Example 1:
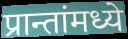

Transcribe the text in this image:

प्रान्तांमध्ये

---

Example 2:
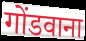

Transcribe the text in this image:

गोंडवाना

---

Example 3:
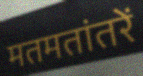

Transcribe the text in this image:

मतमतांतरें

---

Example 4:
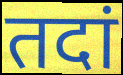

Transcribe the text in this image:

तदां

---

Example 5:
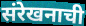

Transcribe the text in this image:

संरेखनाची